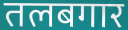
तलबगार